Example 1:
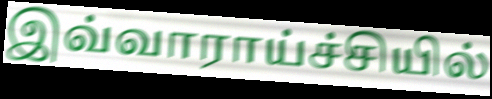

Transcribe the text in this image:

இவ்வாராய்ச்சியில்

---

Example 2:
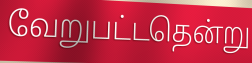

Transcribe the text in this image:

வேறுபட்டதென்று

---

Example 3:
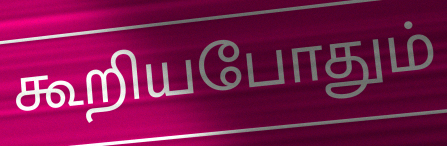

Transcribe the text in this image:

கூறியபோதும்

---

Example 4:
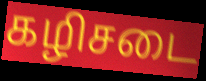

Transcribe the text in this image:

கழிசடை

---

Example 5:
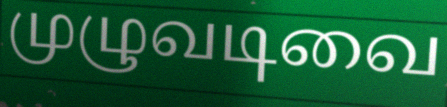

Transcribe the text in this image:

முழுவடிவை